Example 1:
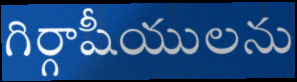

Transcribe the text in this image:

గిర్గాషీయులను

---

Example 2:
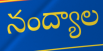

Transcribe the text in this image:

నంద్యాల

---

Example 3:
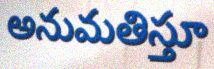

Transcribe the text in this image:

అనుమతిస్తూ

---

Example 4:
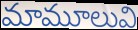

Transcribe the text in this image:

మామూలువి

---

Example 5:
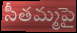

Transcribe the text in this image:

సీతమ్మపై